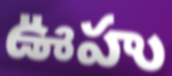
ఊహు